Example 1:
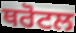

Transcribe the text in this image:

ਥਰੋਟਲ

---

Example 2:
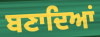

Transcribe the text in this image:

ਬਣਾਦਿਆਂ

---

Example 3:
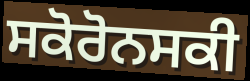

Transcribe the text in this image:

ਸਕੋਰੋਨਸਕੀ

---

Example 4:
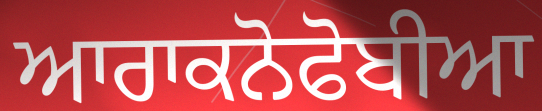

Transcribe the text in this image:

ਆਰਾਕਨੋਫੋਬੀਆ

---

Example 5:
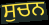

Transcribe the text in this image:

ਸੁਚਨ